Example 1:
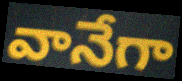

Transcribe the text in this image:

వానేగా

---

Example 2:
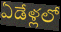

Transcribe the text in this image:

ఏడేళ్లలో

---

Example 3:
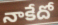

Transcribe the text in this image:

నాకేదో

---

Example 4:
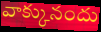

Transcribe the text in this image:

వాక్కునందు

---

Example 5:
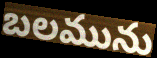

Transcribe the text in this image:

బలమును